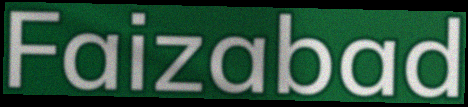
Faizabad